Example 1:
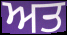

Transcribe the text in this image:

ਅਤ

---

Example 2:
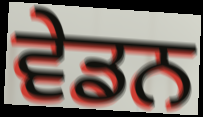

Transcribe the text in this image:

ਵੇਡਨ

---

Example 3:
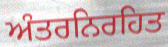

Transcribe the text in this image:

ਅੰਤਰਨਿਰਹਿਤ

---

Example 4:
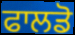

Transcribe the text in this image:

ਫਾਲਡੋ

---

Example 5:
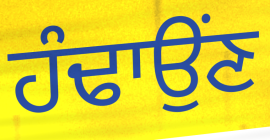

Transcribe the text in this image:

ਹੰਢਾਉਂਣ